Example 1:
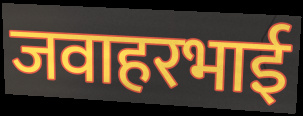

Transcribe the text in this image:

जवाहरभाई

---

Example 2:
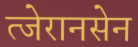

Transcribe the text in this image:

त्जेरानसेन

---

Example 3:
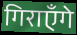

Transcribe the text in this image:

गिराएँगे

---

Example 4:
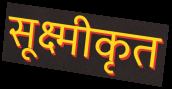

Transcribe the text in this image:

सूक्ष्मीकृत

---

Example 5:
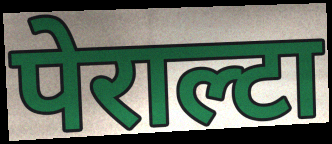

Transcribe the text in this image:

पेराल्टा